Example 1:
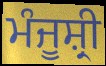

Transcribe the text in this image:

ਮੰਜੂਸ਼੍ਰੀ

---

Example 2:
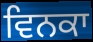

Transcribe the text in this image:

ਵਿਨਕਾ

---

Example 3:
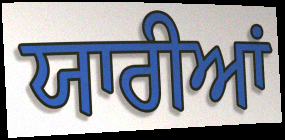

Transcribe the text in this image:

ਯਾਰੀਆਂ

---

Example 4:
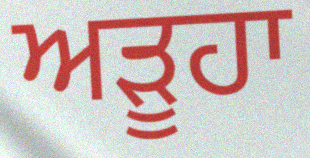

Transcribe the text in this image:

ਅੜੂਹਾ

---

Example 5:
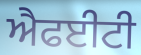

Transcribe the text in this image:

ਐਫਈਟੀ